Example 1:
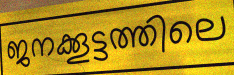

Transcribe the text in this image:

ജനക്കൂട്ടത്തിലെ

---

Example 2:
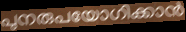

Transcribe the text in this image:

പുനരുപയോഗിക്കാൻ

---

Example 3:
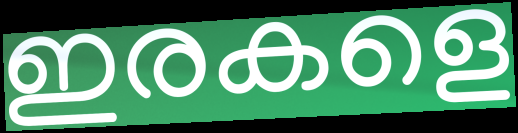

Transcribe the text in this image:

ഇരകളെ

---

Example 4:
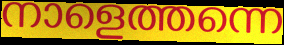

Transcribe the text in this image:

നാളെത്തന്നെ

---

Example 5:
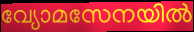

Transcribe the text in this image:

വ്യോമസേനയിൽ